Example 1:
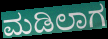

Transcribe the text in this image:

ಮಡಿಲಾಗ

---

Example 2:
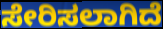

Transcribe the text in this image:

ಸೇರಿಸಲಾಗಿದೆ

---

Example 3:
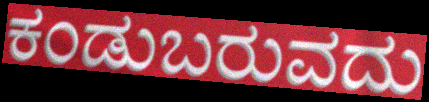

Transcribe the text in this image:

ಕಂಡುಬರುವದು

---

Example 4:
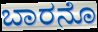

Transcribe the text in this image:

ಬಾರನೊ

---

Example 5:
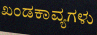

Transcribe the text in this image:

ಖಂಡಕಾವ್ಯಗಳು